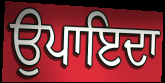
ਉਪਾਇਦਾ